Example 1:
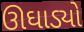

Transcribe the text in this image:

ઊઘાડ્યો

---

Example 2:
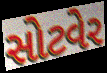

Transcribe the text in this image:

સોટવેર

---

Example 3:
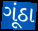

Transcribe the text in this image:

ગૂંઠા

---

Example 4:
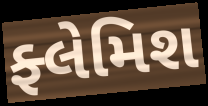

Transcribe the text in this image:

ફ્લેમિશ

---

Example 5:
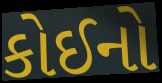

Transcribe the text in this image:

કોઈનો